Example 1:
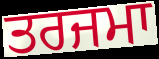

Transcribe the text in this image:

ਤਰਜਮਾ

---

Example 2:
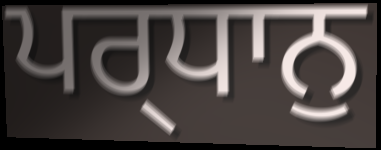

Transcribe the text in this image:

ਪਰ੍ਧਾਨੁ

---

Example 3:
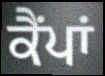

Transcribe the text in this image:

ਕੈੰਪਾਂ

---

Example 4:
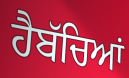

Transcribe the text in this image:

ਹੈਬੱਚਿਆਂ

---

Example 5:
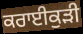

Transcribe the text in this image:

ਕਰਾਈਕੁੜੀ